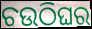
ଚଉଠିଘର